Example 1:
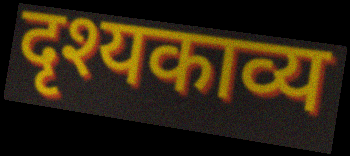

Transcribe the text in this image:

दृश्यकाव्य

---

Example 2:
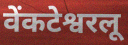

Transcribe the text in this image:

वेंकटेश्वरलू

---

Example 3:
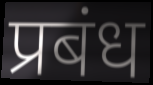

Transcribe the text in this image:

प्रबंध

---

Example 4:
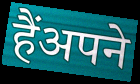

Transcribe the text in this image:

हैंअपने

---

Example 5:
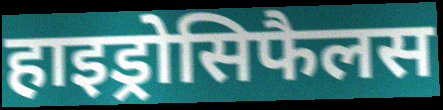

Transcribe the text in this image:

हाइड्रोसिफैलस